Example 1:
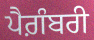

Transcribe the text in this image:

ਪੈਗ਼ੰਬਰੀ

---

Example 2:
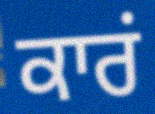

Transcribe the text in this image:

ਕਾਰਂ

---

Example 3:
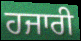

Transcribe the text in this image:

ਹਜਾਰੀ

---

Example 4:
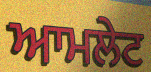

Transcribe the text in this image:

ਆਮਲੇਟ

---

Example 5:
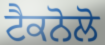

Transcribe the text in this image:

ਟੈਕਨੋਲੋ